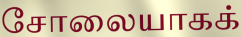
சோலையாகக்